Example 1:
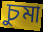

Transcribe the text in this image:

চুমা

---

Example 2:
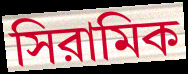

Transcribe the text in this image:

সিরামিক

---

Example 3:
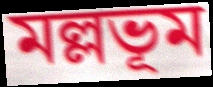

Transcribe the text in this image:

মল্লভূম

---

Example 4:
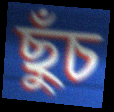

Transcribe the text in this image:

ছুঁচ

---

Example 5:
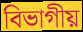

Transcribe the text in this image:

বিভাগীয়